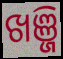
ଖଞ୍ଜି